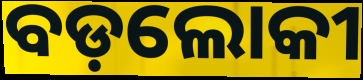
ବଡ଼ଲୋକୀ